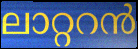
ലാറ്ററൻ